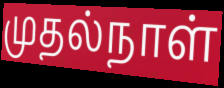
முதல்நாள்